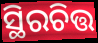
ସ୍ଥିରଚିତ୍ତ